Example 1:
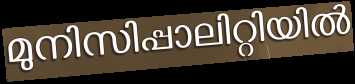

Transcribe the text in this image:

മുനിസിപ്പാലിറ്റിയിൽ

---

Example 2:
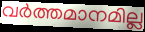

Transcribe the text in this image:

വർത്തമാനമില്ല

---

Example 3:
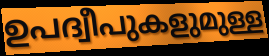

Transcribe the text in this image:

ഉപദ്വീപുകളുമുള്ള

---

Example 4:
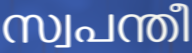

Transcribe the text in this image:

സ്വപന്തീ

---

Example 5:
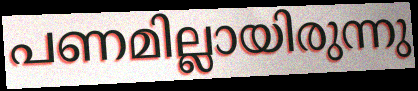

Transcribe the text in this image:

പണമില്ലായിരുന്നു